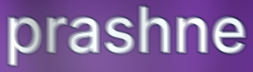
prashne